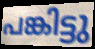
പങ്കിട്ടു